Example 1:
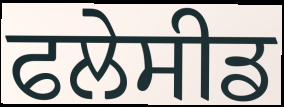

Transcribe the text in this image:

ਫਲੇਸੀਡ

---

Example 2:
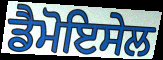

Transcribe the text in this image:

ਡੈਮੋਇਸੇਲ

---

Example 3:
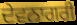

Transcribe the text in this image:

ਦੇਵਨਾਗਰੀ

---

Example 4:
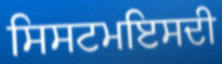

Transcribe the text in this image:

ਸਿਸਟਮਇਸਦੀ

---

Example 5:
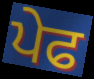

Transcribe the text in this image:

ਪੇਫ